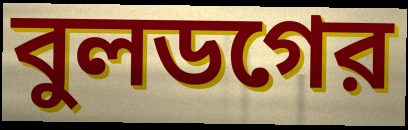
বুলডগের